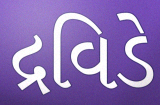
દ્રવિડે